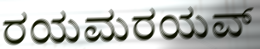
ರಯಮರಯವ್